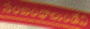
సంబంధాలుండేవి